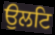
ਉਲਟਿ